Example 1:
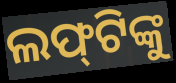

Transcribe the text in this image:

ଲଫ୍‌ଟିଙ୍କୁ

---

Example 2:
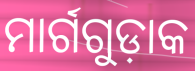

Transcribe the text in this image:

ମାର୍ଗଗୁଡ଼ାକ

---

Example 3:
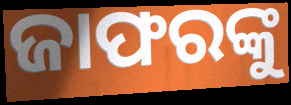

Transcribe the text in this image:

ଜାଫରଙ୍କୁ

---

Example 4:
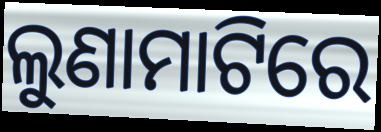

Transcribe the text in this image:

ଲୁଣାମାଟିରେ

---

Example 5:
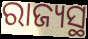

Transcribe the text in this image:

ରାଜ୍ୟସ୍ଥ